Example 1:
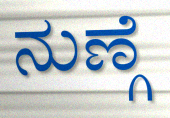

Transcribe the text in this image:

ನುಣ್ಗೆ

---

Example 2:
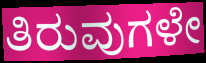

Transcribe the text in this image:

ತಿರುವುಗಳೇ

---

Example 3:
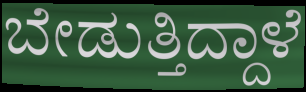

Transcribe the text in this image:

ಬೇಡುತ್ತಿದ್ದಾಳೆ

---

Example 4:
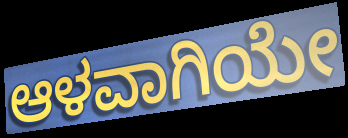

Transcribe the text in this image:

ಆಳವಾಗಿಯೇ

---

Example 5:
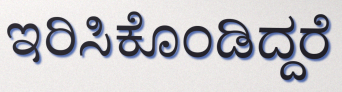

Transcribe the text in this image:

ಇರಿಸಿಕೊಂಡಿದ್ದರೆ